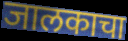
जालकाचा